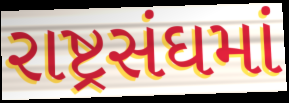
રાષ્ટ્રસંઘમાં